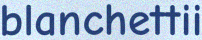
blanchettii